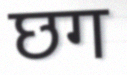
छग